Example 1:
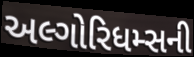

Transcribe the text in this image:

અલ્ગોરિધમ્સની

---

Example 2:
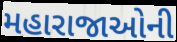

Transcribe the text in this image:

મહારાજાઓની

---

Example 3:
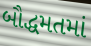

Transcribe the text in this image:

બૌદ્ધમતમાં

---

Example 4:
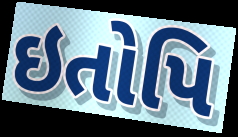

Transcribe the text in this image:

ઇતોપિ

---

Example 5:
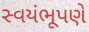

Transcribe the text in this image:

સ્વયંભૂપણે